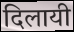
दिलायी